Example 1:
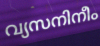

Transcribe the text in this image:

വ്യസനിനീം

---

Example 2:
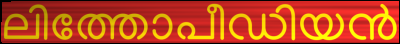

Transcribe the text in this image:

ലിത്തോപീഡിയൻ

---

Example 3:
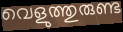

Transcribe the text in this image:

വെളുത്തുരുണ്ട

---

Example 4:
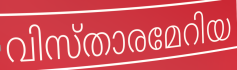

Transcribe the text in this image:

വിസ്താരമേറിയ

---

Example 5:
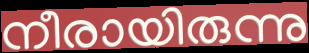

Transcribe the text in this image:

നീരായിരുന്നു